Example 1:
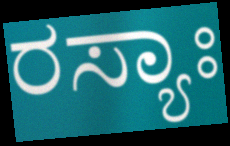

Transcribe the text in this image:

ರಸ್ಯಾಃ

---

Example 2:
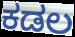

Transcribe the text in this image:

ಕಡಲ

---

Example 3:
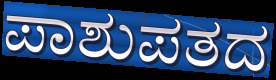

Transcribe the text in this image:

ಪಾಶುಪತದ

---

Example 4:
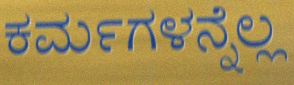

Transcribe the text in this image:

ಕರ್ಮಗಳನ್ನೆಲ್ಲ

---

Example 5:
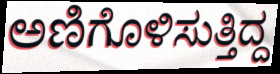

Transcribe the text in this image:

ಅಣಿಗೊಳಿಸುತ್ತಿದ್ದ